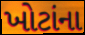
ખોટાંના